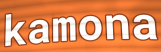
kamona